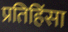
प्रतिहिंसा